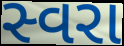
સ્વરા